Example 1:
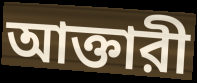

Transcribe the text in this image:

আক্তারী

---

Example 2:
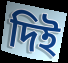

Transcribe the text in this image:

দিই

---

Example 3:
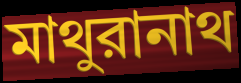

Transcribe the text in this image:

মাথুরানাথ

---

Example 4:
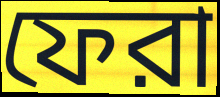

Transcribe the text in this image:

ফেরা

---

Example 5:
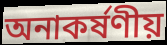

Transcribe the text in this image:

অনাকর্ষণীয়